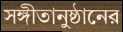
সঙ্গীতানুষ্ঠানের